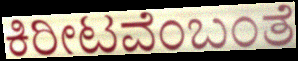
ಕಿರೀಟವೆಂಬಂತೆ